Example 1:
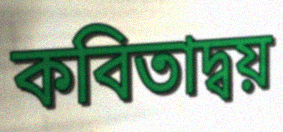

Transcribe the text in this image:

কবিতাদ্বয়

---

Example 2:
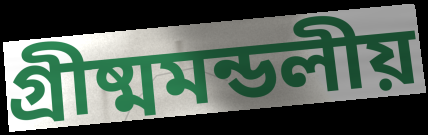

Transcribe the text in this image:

গ্রীষ্মমন্ডলীয়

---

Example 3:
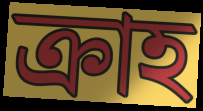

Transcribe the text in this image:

ক্রাহ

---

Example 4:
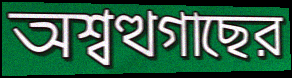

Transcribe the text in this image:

অশ্বত্থগাছের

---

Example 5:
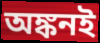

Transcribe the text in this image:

অঙ্কনই